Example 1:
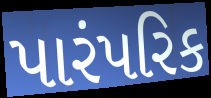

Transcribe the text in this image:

પારંપરિક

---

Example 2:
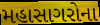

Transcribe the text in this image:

મહાસાગરોના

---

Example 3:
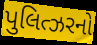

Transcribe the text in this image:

પુલિત્ઝરનો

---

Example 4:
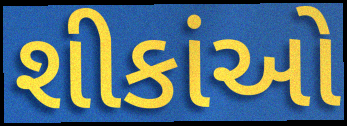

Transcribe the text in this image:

શીકાંઓ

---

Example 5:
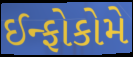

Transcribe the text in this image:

ઈન્ફોકોમે